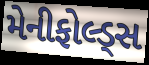
મેનીફોલ્ડ્સ